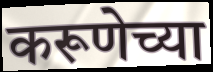
करूणेच्या